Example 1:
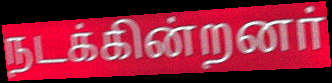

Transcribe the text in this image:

நடக்கின்றனர்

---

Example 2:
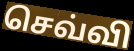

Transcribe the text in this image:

செவ்வி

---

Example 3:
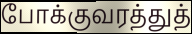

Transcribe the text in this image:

போக்குவரத்துத்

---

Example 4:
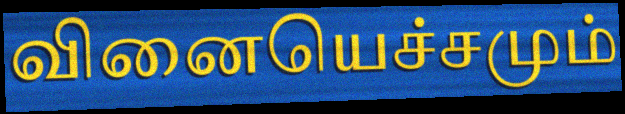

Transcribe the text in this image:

வினையெச்சமும்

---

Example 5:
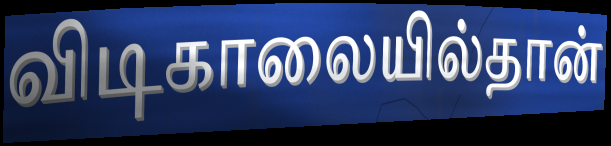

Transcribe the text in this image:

விடிகாலையில்தான்